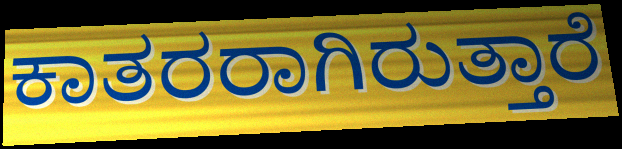
ಕಾತರರಾಗಿರುತ್ತಾರೆ